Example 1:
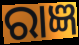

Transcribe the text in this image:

ରାଜ୍ଞ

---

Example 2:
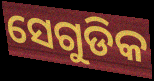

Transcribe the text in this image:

ସେଗୁଡିକ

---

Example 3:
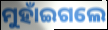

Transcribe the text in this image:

ମୁହାଁଇଗଲେ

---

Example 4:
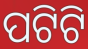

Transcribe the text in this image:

ପଟିଟି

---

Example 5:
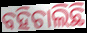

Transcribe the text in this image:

ବହିଚାଲିଛି